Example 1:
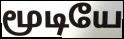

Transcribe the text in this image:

மூடியே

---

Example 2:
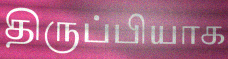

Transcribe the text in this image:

திருப்பியாக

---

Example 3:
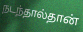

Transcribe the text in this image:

நடந்தால்தான்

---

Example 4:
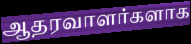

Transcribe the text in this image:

ஆதரவாளர்களாக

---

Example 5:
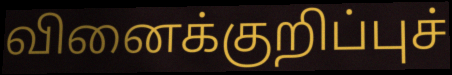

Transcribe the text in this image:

வினைக்குறிப்புச்